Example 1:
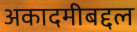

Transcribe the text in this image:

अकादमीबद्दल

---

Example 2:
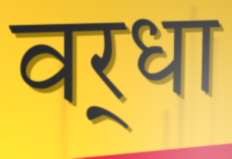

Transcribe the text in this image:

वर्धा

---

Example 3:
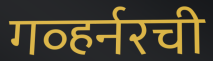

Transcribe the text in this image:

गव्हर्नरची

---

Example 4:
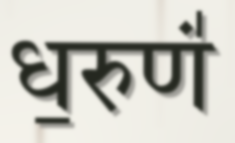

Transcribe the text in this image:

ध॒रुणं॑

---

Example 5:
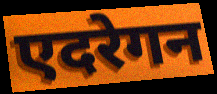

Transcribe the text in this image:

एदरेगन